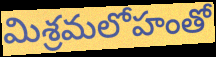
మిశ్రమలోహంతో